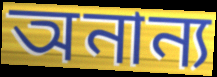
অনান্য